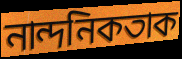
নান্দনিকতাক